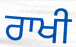
ਰਾਖੀ